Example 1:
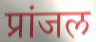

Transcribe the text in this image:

प्रांजल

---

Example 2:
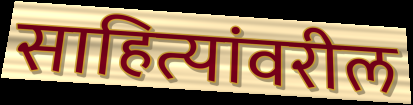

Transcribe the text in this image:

साहित्यांवरील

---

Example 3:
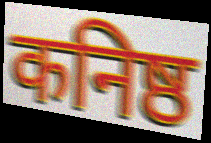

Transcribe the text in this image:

कनिष्ठ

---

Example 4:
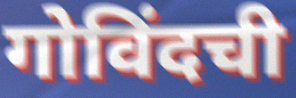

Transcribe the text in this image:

गोविंदची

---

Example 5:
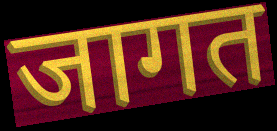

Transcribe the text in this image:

जागत